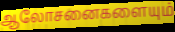
ஆலோசனைகளையும்